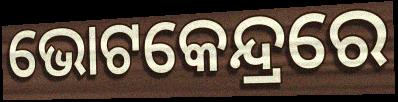
ଭୋଟକେନ୍ଦ୍ରରେ